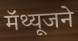
मॅथ्यूजने